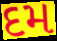
દમ